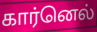
கார்னெல்